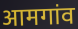
आमगांव